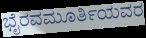
ಭೈರವಮೂರ್ತಿಯವರ